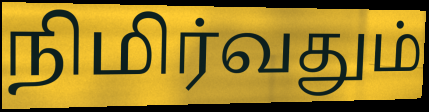
நிமிர்வதும்